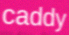
caddy